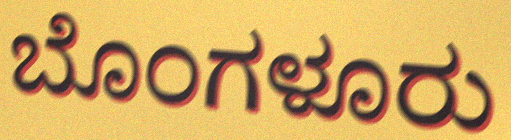
ಬೊಂಗಳೂರು